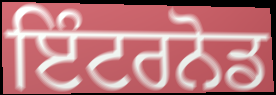
ਇੰਟਰਨੋਡ